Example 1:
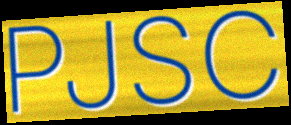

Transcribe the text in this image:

PJSC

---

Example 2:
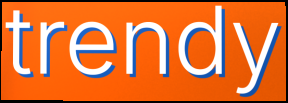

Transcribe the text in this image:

trendy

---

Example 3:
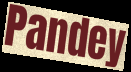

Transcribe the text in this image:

Pandey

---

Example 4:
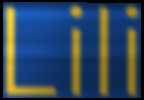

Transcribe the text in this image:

Lili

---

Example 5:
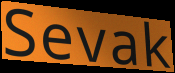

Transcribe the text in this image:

Sevak